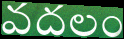
వదలం